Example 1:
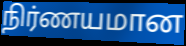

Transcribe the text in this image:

நிர்ணயமான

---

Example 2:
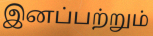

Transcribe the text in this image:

இனப்பற்றும்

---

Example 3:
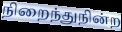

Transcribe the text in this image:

நிறைந்துநின்ற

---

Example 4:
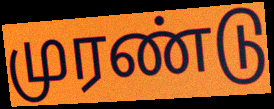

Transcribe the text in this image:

முரண்டு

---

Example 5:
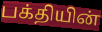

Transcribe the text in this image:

பக்தியின்